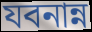
যবনান্ন